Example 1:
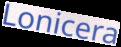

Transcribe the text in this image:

Lonicera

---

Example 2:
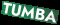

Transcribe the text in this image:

TUMBA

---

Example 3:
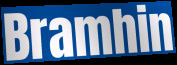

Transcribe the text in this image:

Bramhin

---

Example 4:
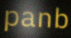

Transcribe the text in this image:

panb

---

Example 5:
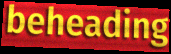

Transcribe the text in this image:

beheading